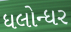
ધલોન્ધર